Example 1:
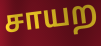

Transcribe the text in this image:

சாயற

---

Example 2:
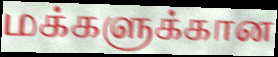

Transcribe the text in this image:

மக்களுக்கான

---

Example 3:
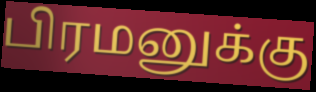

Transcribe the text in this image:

பிரமனுக்கு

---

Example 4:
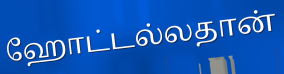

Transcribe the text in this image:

ஹோட்டல்லதான்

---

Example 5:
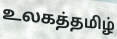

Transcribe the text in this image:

உலகத்தமிழ்